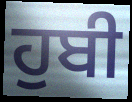
ਹੁਬੀ